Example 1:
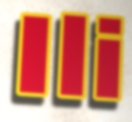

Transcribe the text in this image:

Ili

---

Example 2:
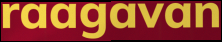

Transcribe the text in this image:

raagavan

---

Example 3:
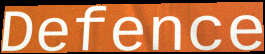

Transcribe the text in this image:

Defence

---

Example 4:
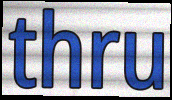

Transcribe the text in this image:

thru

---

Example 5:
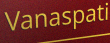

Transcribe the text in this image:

Vanaspati